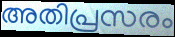
അതിപ്രസരം